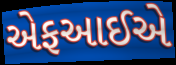
એફઆઈએ